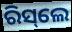
ରିସ୍‌ଲେ